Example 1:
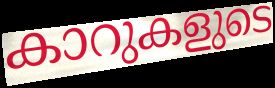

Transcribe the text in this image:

കാറുകളുടെ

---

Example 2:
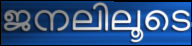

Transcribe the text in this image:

ജനലിലൂടെ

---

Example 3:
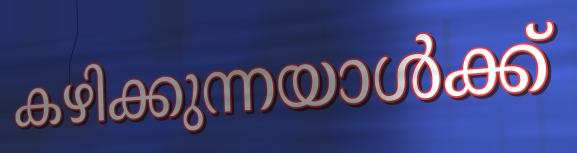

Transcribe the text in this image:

കഴിക്കുന്നയാൾക്ക്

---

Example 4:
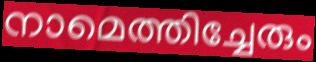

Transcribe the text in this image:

നാമെത്തിച്ചേരും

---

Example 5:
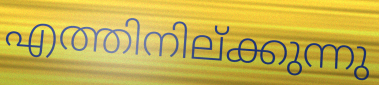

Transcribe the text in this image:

എത്തിനില്ക്കുന്നു